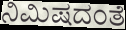
ನಿಮಿಷದಂತೆ